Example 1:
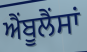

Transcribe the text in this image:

ਐੰਬੂਲੈਂਸਾਂ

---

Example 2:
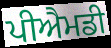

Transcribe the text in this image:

ਪੀਐਮਡੀ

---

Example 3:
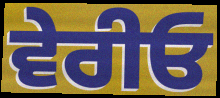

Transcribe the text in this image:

ਵੇਰੀਓ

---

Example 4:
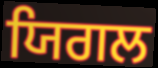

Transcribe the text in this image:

ਯਿਗਲ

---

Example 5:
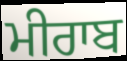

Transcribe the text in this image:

ਮੀਰਾਬ